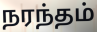
நரந்தம்